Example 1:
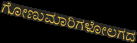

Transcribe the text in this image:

ಗೋಣುಮಾರಿಗಳೋಲಗದ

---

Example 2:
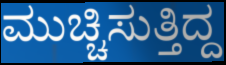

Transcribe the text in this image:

ಮುಚ್ಚಿಸುತ್ತಿದ್ದ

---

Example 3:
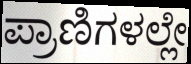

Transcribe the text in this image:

ಪ್ರಾಣಿಗಳಲ್ಲೇ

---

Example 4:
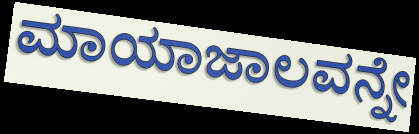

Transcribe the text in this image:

ಮಾಯಾಜಾಲವನ್ನೇ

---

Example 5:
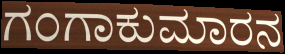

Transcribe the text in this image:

ಗಂಗಾಕುಮಾರನ